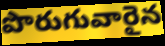
పొరుగువారైన